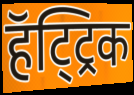
हॅट्ट्रिक